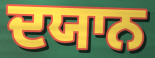
ਦਯਾਨ